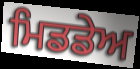
ਮਿਡਡੇਅ